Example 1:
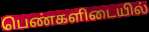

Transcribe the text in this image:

பெண்களிடையில்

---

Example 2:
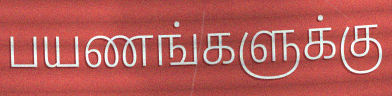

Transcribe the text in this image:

பயணங்களுக்கு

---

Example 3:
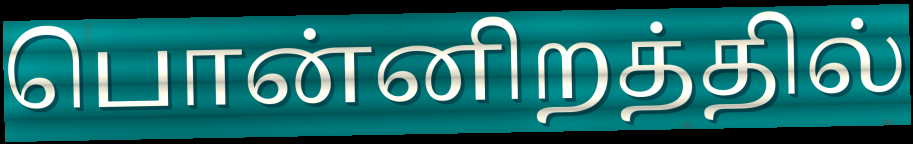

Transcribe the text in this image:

பொன்னிறத்தில்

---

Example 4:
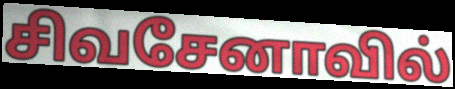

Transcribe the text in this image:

சிவசேனாவில்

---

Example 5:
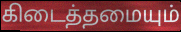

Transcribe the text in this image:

கிடைத்தமையும்